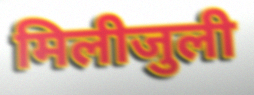
मिलीजुली